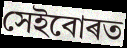
সেইবোৰত